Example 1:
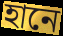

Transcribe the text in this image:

হানে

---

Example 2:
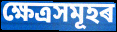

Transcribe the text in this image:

ক্ষেত্ৰসমূহৰ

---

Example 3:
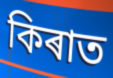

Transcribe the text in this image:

কিৰাত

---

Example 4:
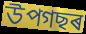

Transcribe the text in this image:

উপগছৰ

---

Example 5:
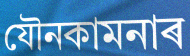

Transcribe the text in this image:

যৌনকামনাৰ